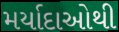
મર્યાદાઓથી